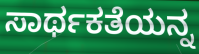
ಸಾರ್ಥಕತೆಯನ್ನ